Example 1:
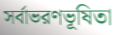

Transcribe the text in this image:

সর্বাভরণভূষিতা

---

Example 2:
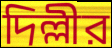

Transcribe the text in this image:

দিল্লীর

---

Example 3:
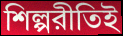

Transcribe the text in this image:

শিল্পরীতিই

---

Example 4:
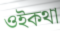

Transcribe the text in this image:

ওইকথা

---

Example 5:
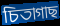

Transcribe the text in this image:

চিতাগাছ